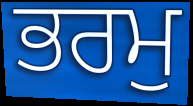
ਭਰਮੁ